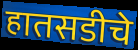
हातसडीचे